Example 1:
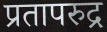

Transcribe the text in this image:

प्रतापरुद्र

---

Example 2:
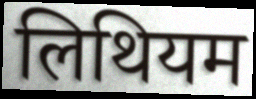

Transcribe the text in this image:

लिथियम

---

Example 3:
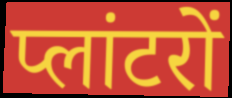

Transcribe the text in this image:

प्लांटरों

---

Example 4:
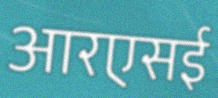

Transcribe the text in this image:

आरएसई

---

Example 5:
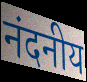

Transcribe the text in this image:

नंदनीय